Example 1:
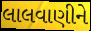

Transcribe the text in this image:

લાલવાણીને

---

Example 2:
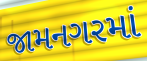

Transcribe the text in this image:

જામનગરમાં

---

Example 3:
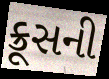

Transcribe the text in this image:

ક્રૂસની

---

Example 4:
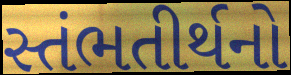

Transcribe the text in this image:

સ્તંભતીર્થનો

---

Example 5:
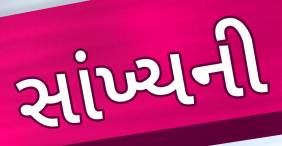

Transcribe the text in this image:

સાંખ્યની